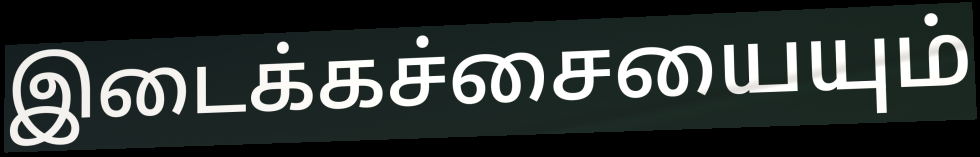
இடைக்கச்சையையும்